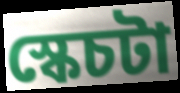
স্কেচটা